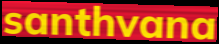
santhvana